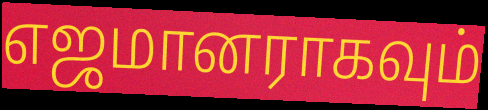
எஜமானராகவும்